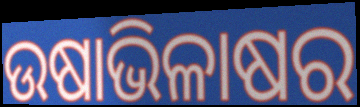
ଉଷାଭିଳାଷର